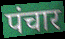
पंचार